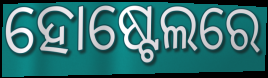
ହୋଷ୍ଟେଲରେ